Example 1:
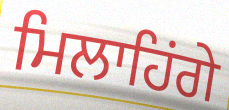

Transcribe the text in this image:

ਮਿਲਾਹਿਂਗੇ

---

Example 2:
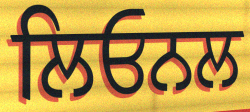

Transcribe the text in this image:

ਲਿਓਨਲ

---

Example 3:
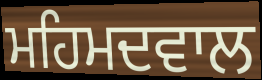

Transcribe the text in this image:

ਮਹਿਮਦਵਾਲ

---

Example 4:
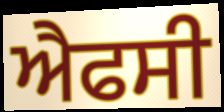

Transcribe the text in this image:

ਐਫਸੀ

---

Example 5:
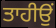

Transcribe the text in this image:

ਤਾਹੀਉਂ